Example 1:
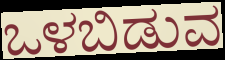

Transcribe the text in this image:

ಒಳಬಿಡುವ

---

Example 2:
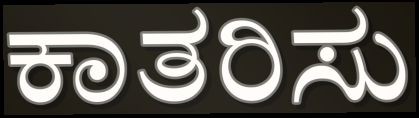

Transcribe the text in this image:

ಕಾತರಿಸು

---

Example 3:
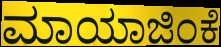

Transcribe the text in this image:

ಮಾಯಾಜಿಂಕೆ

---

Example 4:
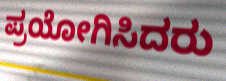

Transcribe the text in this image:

ಪ್ರಯೋಗಿಸಿದರು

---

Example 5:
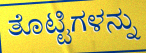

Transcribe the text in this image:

ತೊಟ್ಟಿಗಳನ್ನು